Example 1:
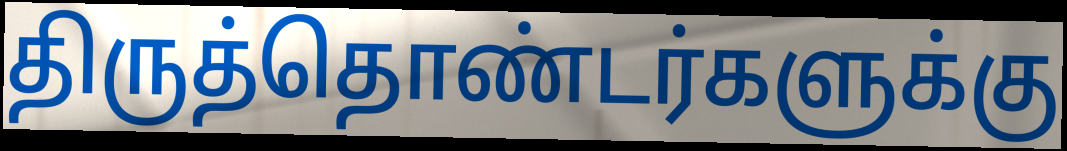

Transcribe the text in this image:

திருத்தொண்டர்களுக்கு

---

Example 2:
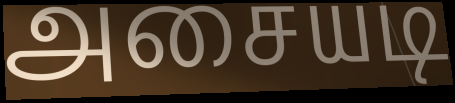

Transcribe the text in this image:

அசையடி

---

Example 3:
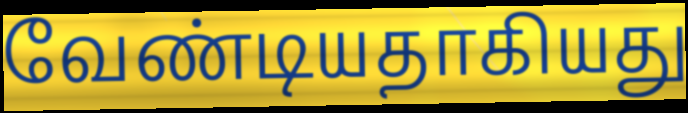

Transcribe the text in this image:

வேண்டியதாகியது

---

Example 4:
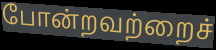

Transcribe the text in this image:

போன்றவற்றைச்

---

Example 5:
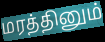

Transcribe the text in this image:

மரத்தினும்